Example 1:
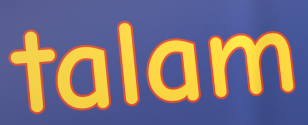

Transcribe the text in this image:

talam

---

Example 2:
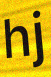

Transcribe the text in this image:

hj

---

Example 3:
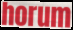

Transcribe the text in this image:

horum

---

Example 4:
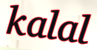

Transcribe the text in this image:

kalal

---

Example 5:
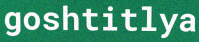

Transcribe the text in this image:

goshtitlya